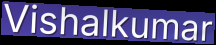
Vishalkumar